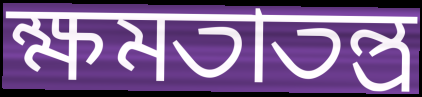
ক্ষমতাতন্ত্র